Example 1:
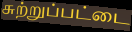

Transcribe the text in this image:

சுற்றுப்பட்டை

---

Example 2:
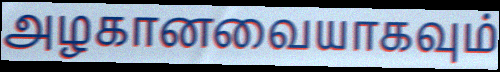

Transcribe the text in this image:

அழகானவையாகவும்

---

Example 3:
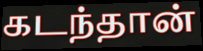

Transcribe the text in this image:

கடந்தான்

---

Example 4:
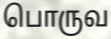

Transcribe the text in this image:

பொருவ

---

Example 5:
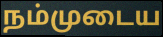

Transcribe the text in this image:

நம்முடைய